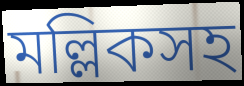
মল্লিকসহ